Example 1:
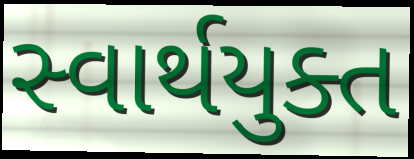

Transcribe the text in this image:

સ્વાર્થયુક્ત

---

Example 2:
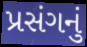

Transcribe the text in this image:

પ્રસંગનું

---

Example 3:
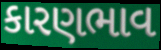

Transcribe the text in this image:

કારણભાવ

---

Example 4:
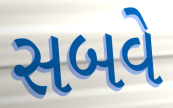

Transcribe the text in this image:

સબવે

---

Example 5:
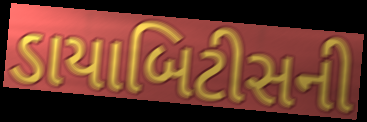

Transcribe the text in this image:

ડાયાબિટીસની